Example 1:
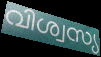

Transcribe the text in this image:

വിശ്വസ്യ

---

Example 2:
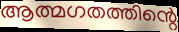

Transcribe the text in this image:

ആത്മഗതത്തിന്റെ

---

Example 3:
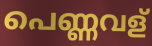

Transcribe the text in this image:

പെണ്ണവള്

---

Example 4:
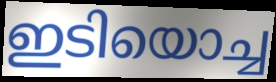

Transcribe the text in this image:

ഇടിയൊച്ച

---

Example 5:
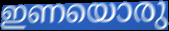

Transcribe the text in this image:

ഇണയൊരു